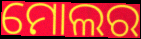
ମୋଲର